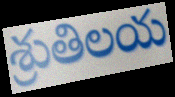
శ్రుతిలయ